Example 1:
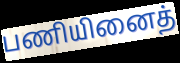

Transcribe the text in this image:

பணியினைத்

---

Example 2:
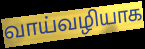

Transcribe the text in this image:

வாய்வழியாக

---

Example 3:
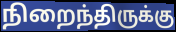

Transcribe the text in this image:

நிறைந்திருக்கு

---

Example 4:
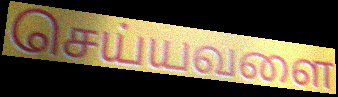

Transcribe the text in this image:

செய்யவளை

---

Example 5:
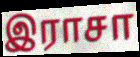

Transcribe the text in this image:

இராசா